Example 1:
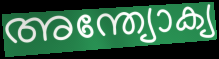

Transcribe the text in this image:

അന്ത്യോക്യ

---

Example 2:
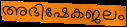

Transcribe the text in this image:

അഭിഷേകജലം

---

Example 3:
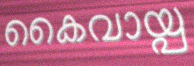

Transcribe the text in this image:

കൈവായ്പ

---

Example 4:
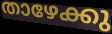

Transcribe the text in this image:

താഴേക്കു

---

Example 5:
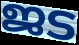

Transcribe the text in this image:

ജട